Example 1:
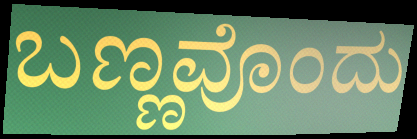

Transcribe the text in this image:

ಬಣ್ಣವೊಂದು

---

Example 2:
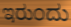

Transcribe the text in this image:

ಇರುಂದು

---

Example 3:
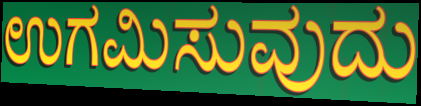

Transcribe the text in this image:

ಉಗಮಿಸುವುದು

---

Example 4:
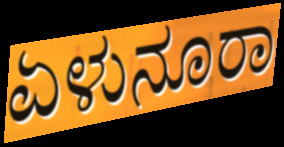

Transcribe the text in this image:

ಏಳುನೂರಾ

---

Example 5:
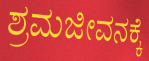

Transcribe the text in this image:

ಶ್ರಮಜೀವನಕ್ಕೆ